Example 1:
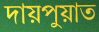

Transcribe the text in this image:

দায়পুয়াত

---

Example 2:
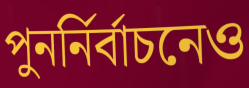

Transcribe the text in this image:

পুনর্নির্বাচনেও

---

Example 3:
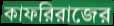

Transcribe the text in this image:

কাফরিরাজের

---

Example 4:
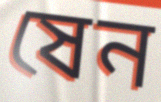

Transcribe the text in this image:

ষেন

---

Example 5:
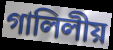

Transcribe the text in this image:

গালিলীয়